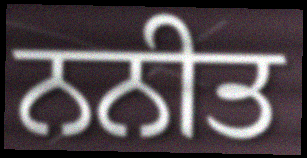
ਨਨੀਤ